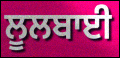
ਲੂਲਬਾਈ